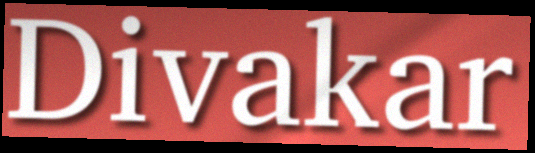
Divakar